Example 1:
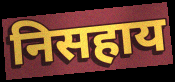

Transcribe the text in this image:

निसहाय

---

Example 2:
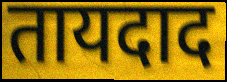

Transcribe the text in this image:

तायदाद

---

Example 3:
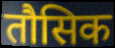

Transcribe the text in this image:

तौसिक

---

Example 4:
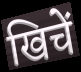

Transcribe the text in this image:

खिचें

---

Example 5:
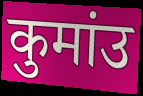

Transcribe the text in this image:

कुमांउ